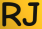
RJ